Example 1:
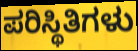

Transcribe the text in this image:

ಪರಿಸ್ಥಿತಿಗಳು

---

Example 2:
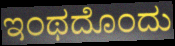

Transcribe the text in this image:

ಇಂಥದೊಂದು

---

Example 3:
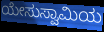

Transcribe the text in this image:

ಯೇಸುಸ್ವಾಮಿಯ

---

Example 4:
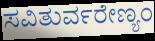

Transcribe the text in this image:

ಸವಿತುರ್ವರೇಣ್ಯಂ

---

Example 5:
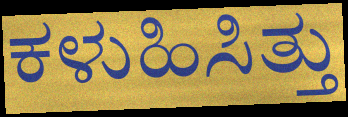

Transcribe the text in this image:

ಕಳುಹಿಸಿತ್ತು